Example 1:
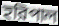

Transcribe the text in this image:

হরিপাল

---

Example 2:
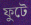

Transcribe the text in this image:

ফুটে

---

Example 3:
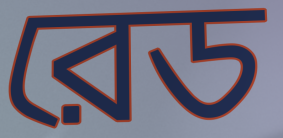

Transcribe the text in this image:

রেড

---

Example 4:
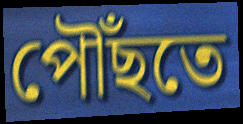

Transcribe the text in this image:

পৌঁছতে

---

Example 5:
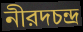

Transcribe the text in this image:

নীরদচন্দ্র